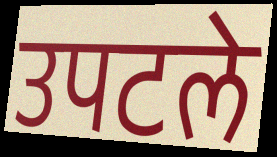
उपटले